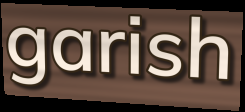
garish